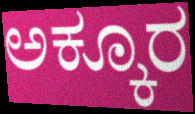
ಅಕ್ಕೂರ